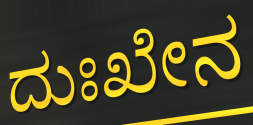
ದುಃಖೇನ